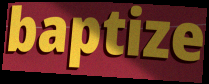
baptize